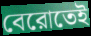
বেরোতেই